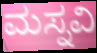
ಮಸ್ನವಿ